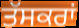
ਤੱਸਕਰਾਂ